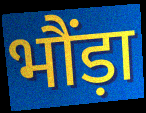
भौंड़ा